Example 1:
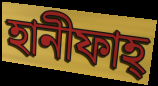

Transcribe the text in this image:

হানীফাহ্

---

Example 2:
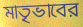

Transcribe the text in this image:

মাতৃভাবের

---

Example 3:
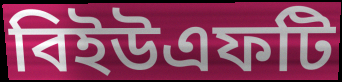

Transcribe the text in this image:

বিইউএফটি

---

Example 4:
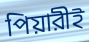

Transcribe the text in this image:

পিয়ারীই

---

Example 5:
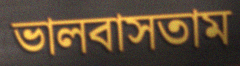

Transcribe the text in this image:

ভালবাসতাম